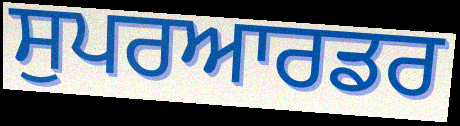
ਸੁਪਰਆਰਡਰ